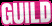
GUILD